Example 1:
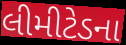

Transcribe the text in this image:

લીમીટેડના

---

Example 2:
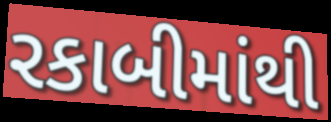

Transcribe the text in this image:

રકાબીમાંથી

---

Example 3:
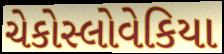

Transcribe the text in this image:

ચેકોસ્લોવેકિયા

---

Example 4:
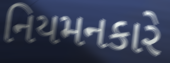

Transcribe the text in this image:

નિયમનકારે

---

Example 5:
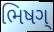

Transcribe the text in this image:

ભિષગ્